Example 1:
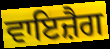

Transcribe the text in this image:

ਵਾਇਜ਼ੈਗ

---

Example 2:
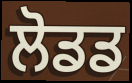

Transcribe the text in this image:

ਲੋਡਡ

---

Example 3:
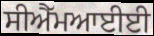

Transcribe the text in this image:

ਸੀਐੱਮਆਈਈ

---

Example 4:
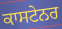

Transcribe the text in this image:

ਕਾਸਟੇਨਰ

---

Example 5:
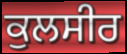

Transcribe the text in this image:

ਕੁਲਸੀਰ